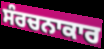
ਸੰਰਚਨਾਕਾਰ